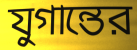
যুগান্তের